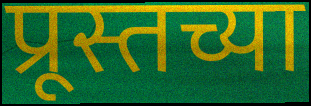
प्रूस्तच्या